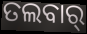
ତଲବାର୍